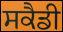
ਸਕੈਡੀ